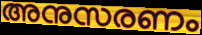
അനുസരണം